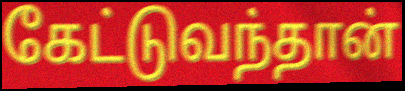
கேட்டுவந்தான்